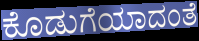
ಕೊಡುಗೆಯಾದಂತೆ